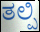
ತಲ್ಪಿ